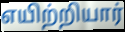
எயிற்றியார்